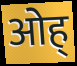
ओह्